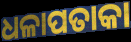
ଧଳାପତାକା